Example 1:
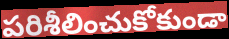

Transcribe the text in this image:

పరిశీలించుకోకుండా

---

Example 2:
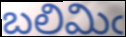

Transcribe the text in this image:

బలిమిఁ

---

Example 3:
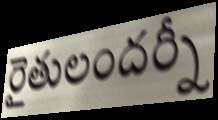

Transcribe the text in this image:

రైతులందర్నీ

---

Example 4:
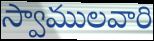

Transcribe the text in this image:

స్వాములవారి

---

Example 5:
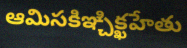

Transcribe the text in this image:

ఆమిసకిఞ్చిక్ఖహేతు